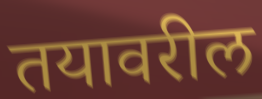
तयावरील